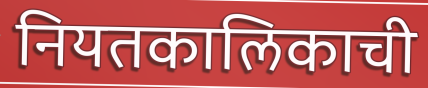
नियतकालिकाची